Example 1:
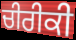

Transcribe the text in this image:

ਚੀਰੀਕੀ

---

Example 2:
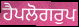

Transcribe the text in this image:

ਹੈਪਲੋਗਰੁਪ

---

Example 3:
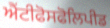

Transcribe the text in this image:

ਐਂਟੀਫੋਸਫੋਲਿਪੀਡ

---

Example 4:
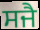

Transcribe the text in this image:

ਸਜੈ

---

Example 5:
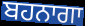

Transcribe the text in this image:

ਬਹਨਾਗਾ